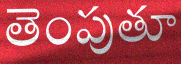
తెంపుతూ